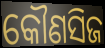
କୌଣସିଜ